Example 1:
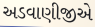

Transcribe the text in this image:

અડવાણીજીએ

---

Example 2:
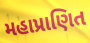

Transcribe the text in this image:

મહાપ્રાણિત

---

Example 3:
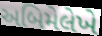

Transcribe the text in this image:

અબિમેલેખે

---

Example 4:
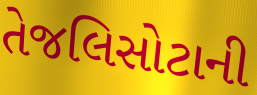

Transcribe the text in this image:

તેજલિસોટાની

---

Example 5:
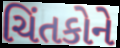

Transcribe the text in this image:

ચિંતકોને